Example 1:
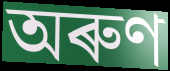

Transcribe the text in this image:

অৰুণ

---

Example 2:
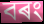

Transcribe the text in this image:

বৰং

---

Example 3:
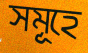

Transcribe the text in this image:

সমূহে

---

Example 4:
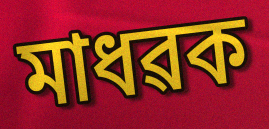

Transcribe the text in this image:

মাধৱক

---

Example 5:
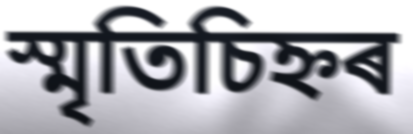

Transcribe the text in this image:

স্মৃতিচিহ্নৰ